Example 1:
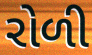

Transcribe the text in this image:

રોળી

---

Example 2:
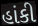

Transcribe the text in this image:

હાંકી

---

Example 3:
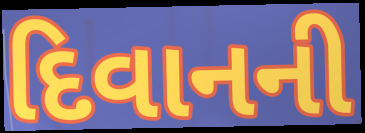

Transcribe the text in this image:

દિવાનની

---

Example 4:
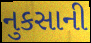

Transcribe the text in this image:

નુકસાની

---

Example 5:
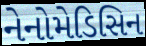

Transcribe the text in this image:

નેનોમેડિસિન